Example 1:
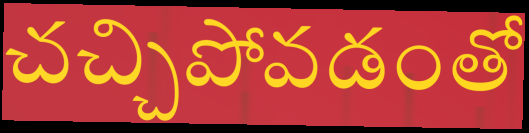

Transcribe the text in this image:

చచ్చిపోవడంతో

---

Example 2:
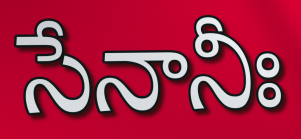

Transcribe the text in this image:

సేనానీః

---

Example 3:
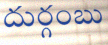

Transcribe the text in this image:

దుర్గంబు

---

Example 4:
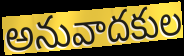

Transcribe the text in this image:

అనువాదకుల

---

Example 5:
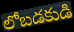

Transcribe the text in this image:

లోబడకుడి